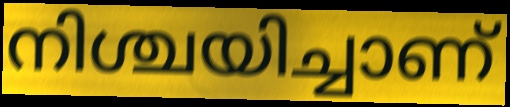
നിശ്ചയിച്ചാണ്